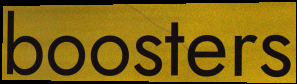
boosters